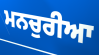
ਮਨਚੁਰੀਆ